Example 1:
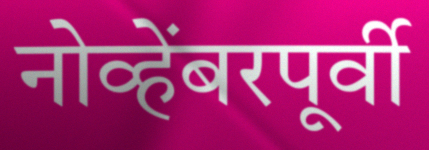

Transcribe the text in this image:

नोव्हेंबरपूर्वी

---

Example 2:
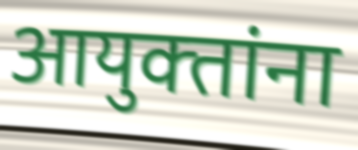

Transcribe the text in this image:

आयुक्‍तांना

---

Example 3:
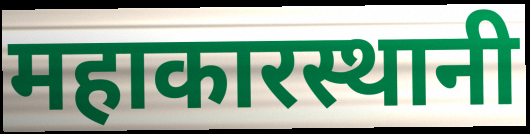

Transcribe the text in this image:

महाकारस्थानी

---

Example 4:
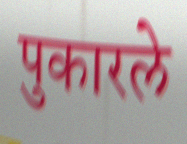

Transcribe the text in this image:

पुकारले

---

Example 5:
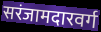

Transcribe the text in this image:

सरंजामदारवर्ग